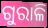
ଗୁରାଳି